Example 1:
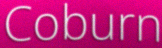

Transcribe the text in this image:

Coburn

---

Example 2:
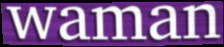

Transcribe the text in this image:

waman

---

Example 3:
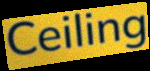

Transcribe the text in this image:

Ceiling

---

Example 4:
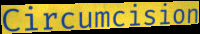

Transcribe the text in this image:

Circumcision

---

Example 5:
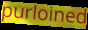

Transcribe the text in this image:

purloined